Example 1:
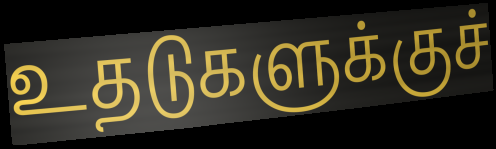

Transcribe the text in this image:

உதடுகளுக்குச்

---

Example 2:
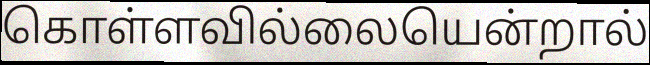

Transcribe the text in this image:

கொள்ளவில்லையென்றால்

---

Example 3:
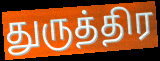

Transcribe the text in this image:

துருத்திர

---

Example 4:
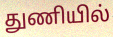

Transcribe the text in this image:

துணியில்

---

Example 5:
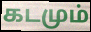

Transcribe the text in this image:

கடமும்